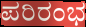
ಪರಿರಂಭ